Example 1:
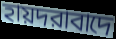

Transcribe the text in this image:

হায়দরাবাদে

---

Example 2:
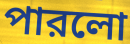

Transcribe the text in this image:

পারলো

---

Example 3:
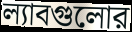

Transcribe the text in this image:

ল্যাবগুলোর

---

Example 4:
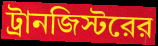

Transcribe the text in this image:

ট্রানজিস্টরের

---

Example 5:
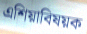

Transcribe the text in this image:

এশিয়াবিষয়ক